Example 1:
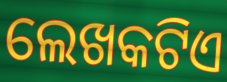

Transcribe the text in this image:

ଲେଖକଟିଏ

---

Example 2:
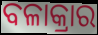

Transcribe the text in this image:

ବଳାକ୍ରାର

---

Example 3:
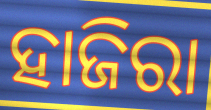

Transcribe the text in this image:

ହାଜିରା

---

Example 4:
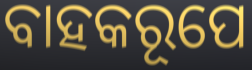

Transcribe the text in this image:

ବାହକରୂପେ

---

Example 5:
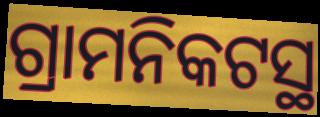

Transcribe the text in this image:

ଗ୍ରାମନିକଟସ୍ଥ